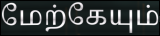
மேற்கேயும்